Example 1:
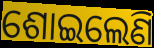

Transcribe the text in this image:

ଶୋଇଲେଣି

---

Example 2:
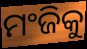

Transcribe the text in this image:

ମଂଜିକୁ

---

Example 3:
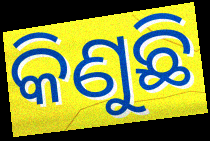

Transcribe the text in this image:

କିଣୁଛି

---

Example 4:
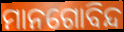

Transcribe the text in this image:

ମାନଗୋବିନ୍ଦ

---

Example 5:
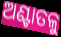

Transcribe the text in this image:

ଅଣ୍ଟାତଳୁ